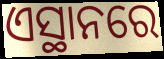
ଏସ୍ଥାନରେ